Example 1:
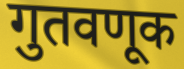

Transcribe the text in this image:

गुतवणूक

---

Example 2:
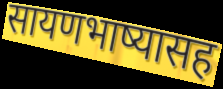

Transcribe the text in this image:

सायणभाष्यासह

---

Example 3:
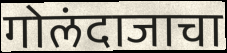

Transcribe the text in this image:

गोलंदाजाचा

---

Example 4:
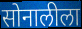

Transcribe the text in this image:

सोनालीला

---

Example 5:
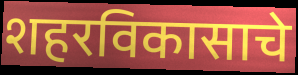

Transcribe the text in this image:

शहरविकासाचे